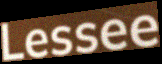
Lessee